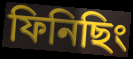
ফিনিছিং